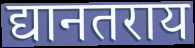
द्यानतराय